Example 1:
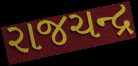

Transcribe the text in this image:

રાજચન્દ્ર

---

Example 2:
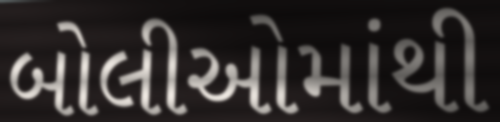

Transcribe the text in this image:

બોલીઓમાંથી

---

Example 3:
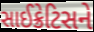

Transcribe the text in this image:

સાઈક્રેટિસને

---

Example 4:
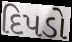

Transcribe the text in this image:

દિપડો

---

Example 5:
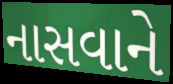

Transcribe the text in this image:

નાસવાને